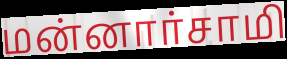
மன்னார்சாமி